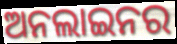
ଅନଲାଇନର